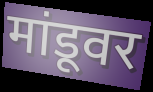
मांडूवर